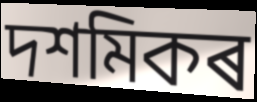
দশমিকৰ